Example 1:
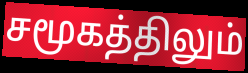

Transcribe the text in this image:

சமூகத்திலும்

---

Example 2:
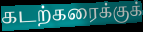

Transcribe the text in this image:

கடற்கரைக்குக்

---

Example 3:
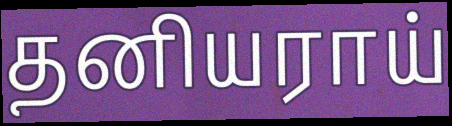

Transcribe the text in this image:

தனியராய்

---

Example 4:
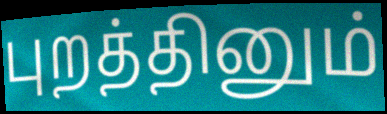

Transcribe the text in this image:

புறத்தினும்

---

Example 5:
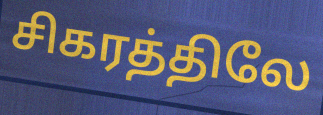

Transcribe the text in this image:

சிகரத்திலே